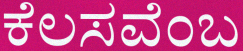
ಕೆಲಸವೆಂಬ